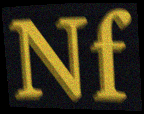
Nf